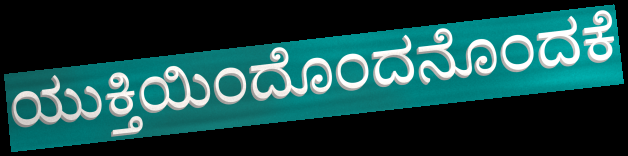
ಯುಕ್ತಿಯಿಂದೊಂದನೊಂದಕೆ